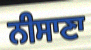
ਨੀਸਾਣਾ